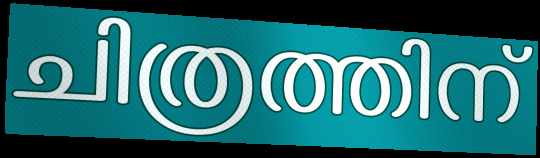
ചിത്രത്തിന്